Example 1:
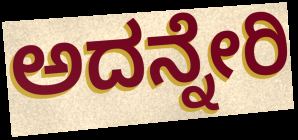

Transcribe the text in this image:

ಅದನ್ನೇರಿ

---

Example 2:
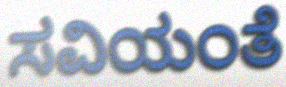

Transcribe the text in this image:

ಸವಿಯಂತೆ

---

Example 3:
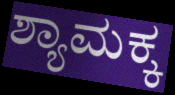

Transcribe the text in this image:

ಶ್ಯಾಮಕ್ಕ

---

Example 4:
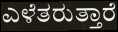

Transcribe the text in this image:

ಎಳೆತರುತ್ತಾರೆ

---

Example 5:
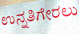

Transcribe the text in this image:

ಉನ್ನತಿಗೇರಲು